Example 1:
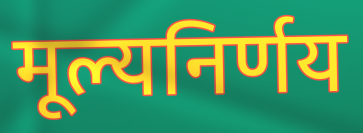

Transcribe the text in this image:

मूल्यनिर्णय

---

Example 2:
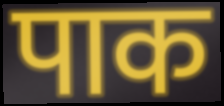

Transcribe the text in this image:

पाक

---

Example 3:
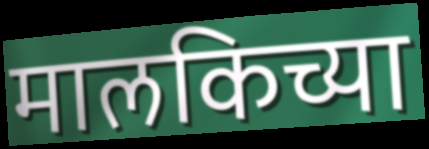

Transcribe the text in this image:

मालकिच्या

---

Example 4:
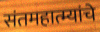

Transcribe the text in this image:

संतमहात्म्यांचे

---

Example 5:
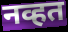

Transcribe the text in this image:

नव्हत